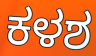
ಕಳಶ